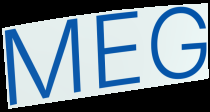
MEG